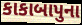
કાકાબાપુના